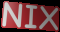
NIX